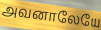
அவனாலேயே